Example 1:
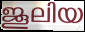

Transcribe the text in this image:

ജൂലിയ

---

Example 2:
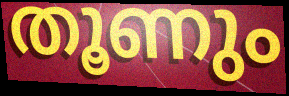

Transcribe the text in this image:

തൂണും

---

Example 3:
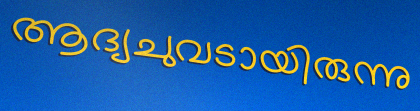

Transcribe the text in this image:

ആദ്യചുവടായിരുന്നു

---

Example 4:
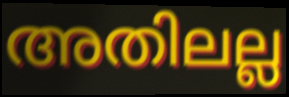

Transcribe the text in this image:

അതിലല്ല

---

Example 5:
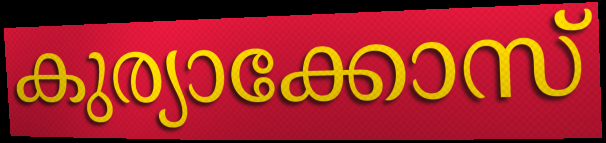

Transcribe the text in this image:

കുര്യാക്കോസ്